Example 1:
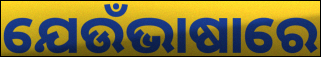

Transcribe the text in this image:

ଯେଉଁଭାଷାରେ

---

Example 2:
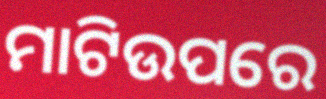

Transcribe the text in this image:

ମାଟିଉପରେ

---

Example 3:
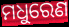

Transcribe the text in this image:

ମଧୁରେଣ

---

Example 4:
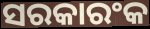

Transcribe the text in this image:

ସରକାରଂକ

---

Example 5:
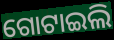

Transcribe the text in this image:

ଗୋଟାଇଲି